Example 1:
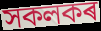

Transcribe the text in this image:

সকলকৰ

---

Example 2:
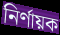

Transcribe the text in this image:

নিৰ্ণায়ক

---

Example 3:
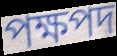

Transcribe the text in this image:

পক্ষপদ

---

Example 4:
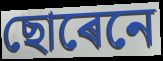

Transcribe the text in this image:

ছোৰেনে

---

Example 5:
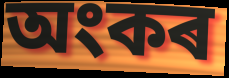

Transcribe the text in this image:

অংকৰ